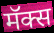
मॅक्स